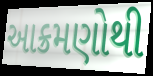
આક્રમણોથી